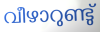
വീഴാറുണ്ടു്